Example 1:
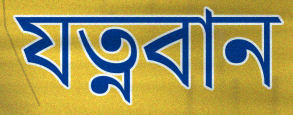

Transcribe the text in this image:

যত্নবান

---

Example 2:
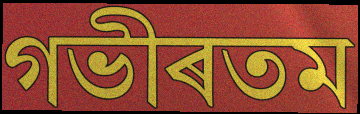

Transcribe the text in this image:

গভীৰতম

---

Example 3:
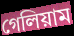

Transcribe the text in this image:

গেলিয়াম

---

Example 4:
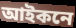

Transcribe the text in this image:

আইকনে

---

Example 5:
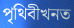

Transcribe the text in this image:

পৃথিবীখনত